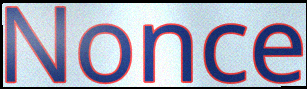
Nonce